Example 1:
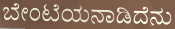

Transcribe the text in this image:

ಬೇಂಟೆಯನಾಡಿದೆನು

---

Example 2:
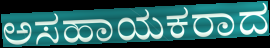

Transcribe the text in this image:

ಅಸಹಾಯಕರಾದ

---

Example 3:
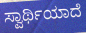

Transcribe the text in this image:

ಸ್ವಾರ್ಥಿಯಾದೆ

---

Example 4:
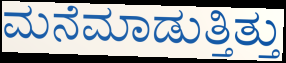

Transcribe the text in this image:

ಮನೆಮಾಡುತ್ತಿತ್ತು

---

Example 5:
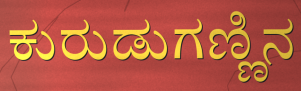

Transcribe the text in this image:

ಕುರುಡುಗಣ್ಣಿನ